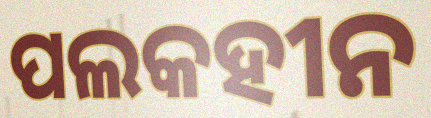
ପଲକହୀନ